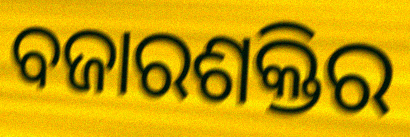
ବଜାରଶକ୍ତିର